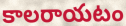
కాలరాయటం